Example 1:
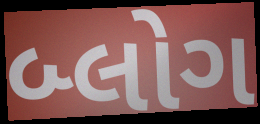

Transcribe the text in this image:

બ્લોગ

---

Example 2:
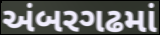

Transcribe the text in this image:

અંબરગઢમાં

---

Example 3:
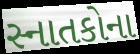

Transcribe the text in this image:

સ્નાતકોના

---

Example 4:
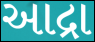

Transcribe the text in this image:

આદ્રા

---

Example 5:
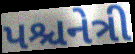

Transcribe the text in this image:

પશ્ચનેત્રી